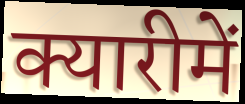
क्यारीमें